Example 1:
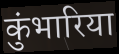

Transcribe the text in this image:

कुंभारिया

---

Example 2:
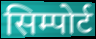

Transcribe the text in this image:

सिम्पोर्ट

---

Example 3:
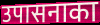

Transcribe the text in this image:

उपासनाका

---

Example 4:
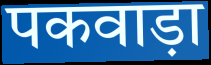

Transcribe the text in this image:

पकवाड़ा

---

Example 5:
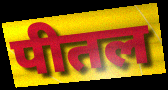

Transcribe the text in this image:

पीतल